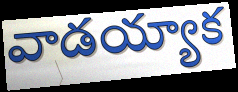
వాడయ్యాక